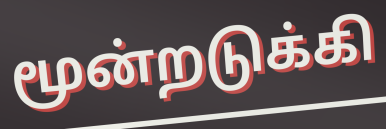
மூன்றடுக்கி